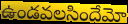
ఉండవలసిందేమో